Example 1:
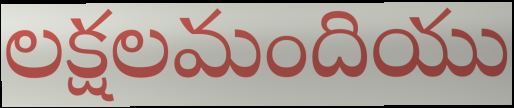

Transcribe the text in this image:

లక్షలమందియు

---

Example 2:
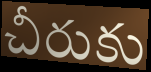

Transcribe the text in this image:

చీరుకు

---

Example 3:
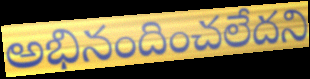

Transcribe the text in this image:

అభినందించలేదని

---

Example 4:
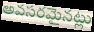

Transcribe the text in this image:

అవసరమైనట్లు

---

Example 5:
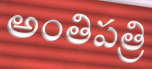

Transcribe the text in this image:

అంతిపత్రి